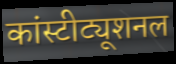
कांस्टीट्यूशनल